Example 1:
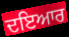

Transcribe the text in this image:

ਦਇਆਰ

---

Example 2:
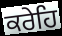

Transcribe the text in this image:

ਕਰੇਹਿ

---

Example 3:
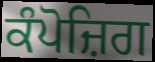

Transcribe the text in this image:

ਕੰਪੋਜ਼ਿਗ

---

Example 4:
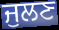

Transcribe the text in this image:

ਜੁਲਣ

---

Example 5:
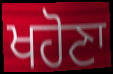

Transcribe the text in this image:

ਖਹੋਣਾ